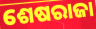
ଶେଷରାଜା